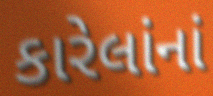
કારેલાંનાં